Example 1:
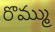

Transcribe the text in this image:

రొమ్ము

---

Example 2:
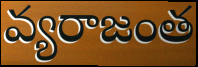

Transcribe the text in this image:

వ్యరాజంత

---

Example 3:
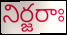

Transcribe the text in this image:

నిర్జరాః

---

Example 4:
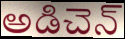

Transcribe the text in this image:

అడిచెన్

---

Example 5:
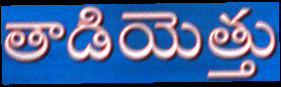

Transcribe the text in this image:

తాడియెత్తు